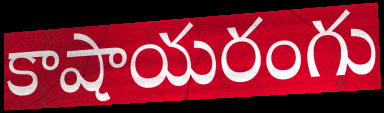
కాషాయరంగు